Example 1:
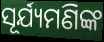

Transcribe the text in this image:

ସୂର୍ଯ୍ୟମଣିଙ୍କ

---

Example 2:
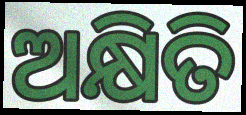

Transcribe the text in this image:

ଅକ୍ଷିତି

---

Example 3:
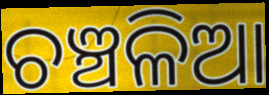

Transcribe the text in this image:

ଚଞ୍ଚଳିଆ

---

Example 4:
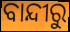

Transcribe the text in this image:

ବାନ୍ଦୀରୁ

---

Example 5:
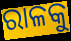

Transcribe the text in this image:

ରାଳକୁ